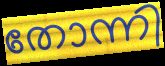
തോന്നി